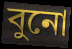
বুনো